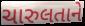
ચારુલતાને